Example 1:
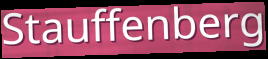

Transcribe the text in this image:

Stauffenberg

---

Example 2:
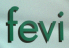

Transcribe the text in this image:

fevi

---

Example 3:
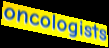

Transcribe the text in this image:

oncologists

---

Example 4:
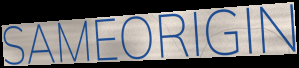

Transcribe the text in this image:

SAMEORIGIN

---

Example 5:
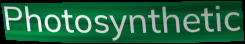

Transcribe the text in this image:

Photosynthetic